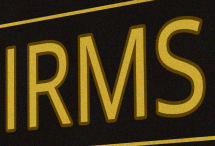
IRMS